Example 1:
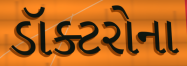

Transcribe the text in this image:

ડૉક્ટરોના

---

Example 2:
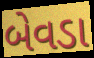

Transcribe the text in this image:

બેવડા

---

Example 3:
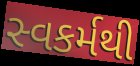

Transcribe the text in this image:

સ્વકર્મથી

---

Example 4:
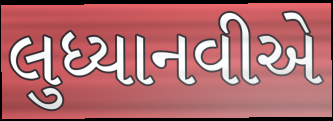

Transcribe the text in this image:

લુધ્યાનવીએ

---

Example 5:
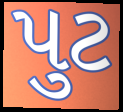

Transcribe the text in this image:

પુટ